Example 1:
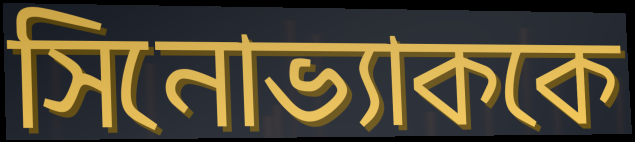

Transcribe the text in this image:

সিনোভ্যাককে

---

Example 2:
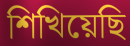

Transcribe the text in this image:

শিখিয়েছি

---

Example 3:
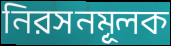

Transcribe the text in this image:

নিরসনমূলক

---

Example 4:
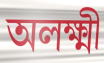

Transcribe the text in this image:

অলক্ষ্মী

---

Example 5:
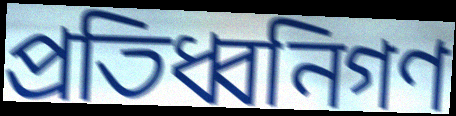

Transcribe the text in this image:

প্রতিধ্বনিগণ